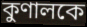
কুণালকে